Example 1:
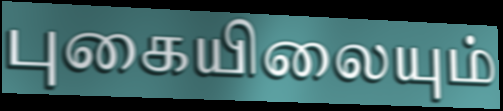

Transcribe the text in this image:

புகையிலையும்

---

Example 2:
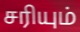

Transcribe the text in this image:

சரியும்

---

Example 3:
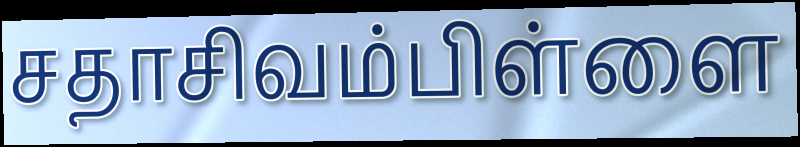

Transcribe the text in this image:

சதாசிவம்பிள்ளை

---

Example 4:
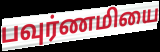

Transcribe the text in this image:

பவுர்ணமியை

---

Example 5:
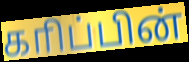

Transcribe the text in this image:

கரிப்பின்